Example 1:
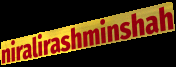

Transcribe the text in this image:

niralirashminshah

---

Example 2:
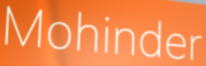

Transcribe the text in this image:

Mohinder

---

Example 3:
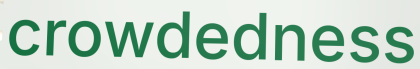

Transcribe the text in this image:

crowdedness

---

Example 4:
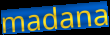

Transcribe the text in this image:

madana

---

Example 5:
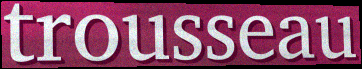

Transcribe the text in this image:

trousseau